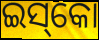
ଇସ୍‌କୋ